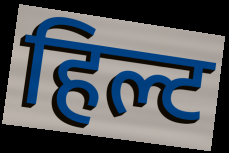
हिल्ट